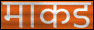
माकड